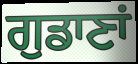
ਗੁਡਾਣਾਂ